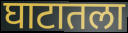
घाटातला